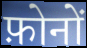
फ़ोनों